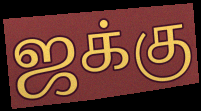
ஜக்கு